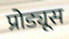
प्रोड्यूस